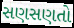
સણસણતો